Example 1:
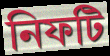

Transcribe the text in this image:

নিফটি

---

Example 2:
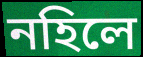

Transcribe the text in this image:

নহিলে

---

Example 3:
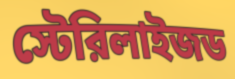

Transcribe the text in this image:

স্টেরিলাইজড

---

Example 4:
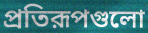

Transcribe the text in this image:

প্রতিরূপগুলো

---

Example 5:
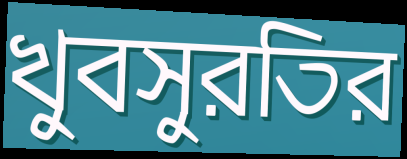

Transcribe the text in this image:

খুবসুরতির